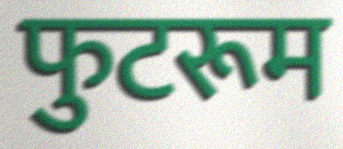
फुटरूम